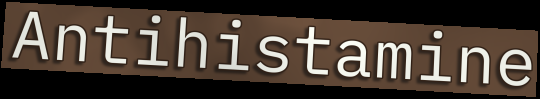
Antihistamine